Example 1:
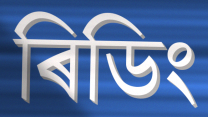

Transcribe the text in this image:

ৰিডিং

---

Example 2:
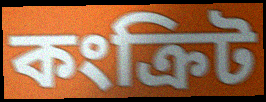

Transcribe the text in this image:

কংক্ৰিট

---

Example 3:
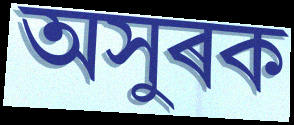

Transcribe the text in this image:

অসুৰক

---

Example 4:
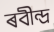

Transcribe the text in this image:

ৰবীন্দ্ৰ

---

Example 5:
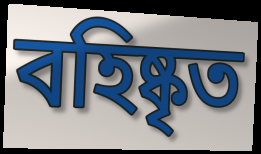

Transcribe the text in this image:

বহিষ্কৃত